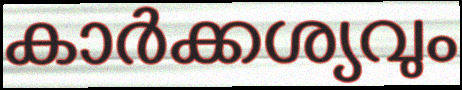
കാർക്കശ്യവും